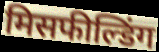
मिसफील्डिंग